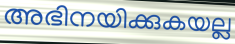
അഭിനയിക്കുകയല്ല